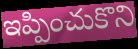
ఇప్పించుకొని